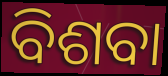
ବିଶବା